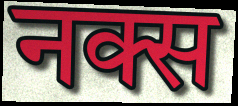
नक्स